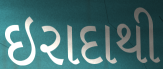
ઇરાદાથી